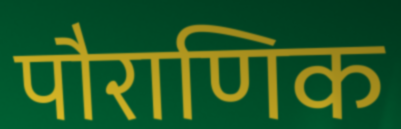
पौराणिक